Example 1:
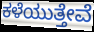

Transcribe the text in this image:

ಕಳೆಯುತ್ತೇವೆ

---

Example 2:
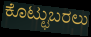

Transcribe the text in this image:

ಕೊಟ್ಟುಬರಲು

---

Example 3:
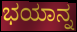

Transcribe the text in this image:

ಭಯಾನ್ನ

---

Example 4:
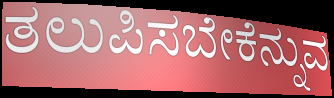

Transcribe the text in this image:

ತಲುಪಿಸಬೇಕೆನ್ನುವ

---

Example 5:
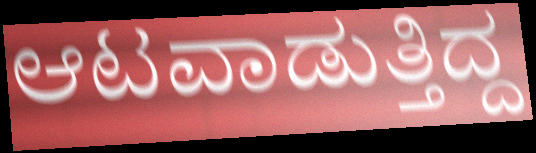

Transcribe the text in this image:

ಆಟವಾಡುತ್ತಿದ್ದ